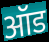
ऑड